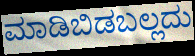
ಮಾಡಿಬಿಡಬಲ್ಲದು